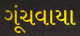
ગૂંચવાયા